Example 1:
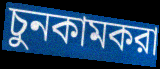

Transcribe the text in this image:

চুনকামকরা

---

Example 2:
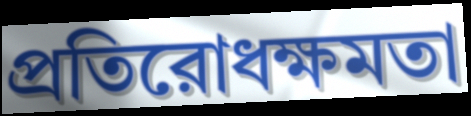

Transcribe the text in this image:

প্রতিরোধক্ষমতা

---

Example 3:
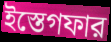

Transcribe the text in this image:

ইস্তেগফার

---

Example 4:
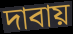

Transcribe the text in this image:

দাবায়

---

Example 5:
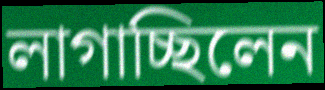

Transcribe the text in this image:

লাগাচ্ছিলেন